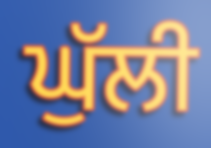
ਘੁੱਲੀ